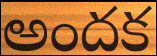
అందక